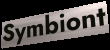
Symbiont